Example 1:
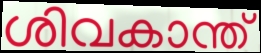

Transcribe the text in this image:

ശിവകാന്ത്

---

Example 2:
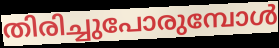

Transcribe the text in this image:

തിരിച്ചുപോരുമ്പോൾ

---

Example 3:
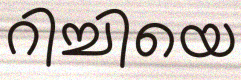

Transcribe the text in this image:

റിച്ചിയെ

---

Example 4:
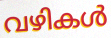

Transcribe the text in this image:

വഴികൾ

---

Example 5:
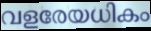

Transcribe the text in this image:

വളരേയധികം